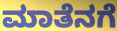
ಮಾತೆನಗೆ